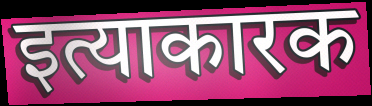
इत्याकारक